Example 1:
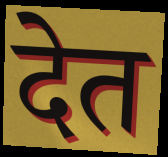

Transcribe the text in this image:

देत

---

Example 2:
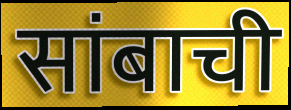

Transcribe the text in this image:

सांबाची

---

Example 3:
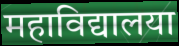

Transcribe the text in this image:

महाविद्यालया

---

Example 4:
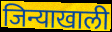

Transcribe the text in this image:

जिन्याखाली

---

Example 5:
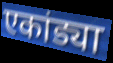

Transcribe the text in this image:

एकांड्या